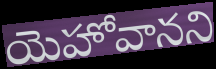
యెహోవానని